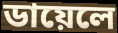
ডায়েলে